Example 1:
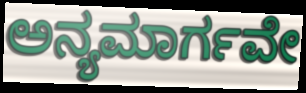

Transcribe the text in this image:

ಅನ್ಯಮಾರ್ಗವೇ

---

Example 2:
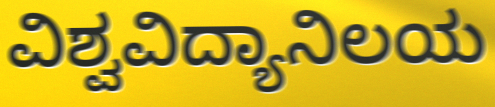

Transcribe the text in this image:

ವಿಶ್ವವಿದ್ಯಾನಿಲಯ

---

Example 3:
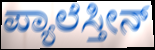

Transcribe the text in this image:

ಪ್ಯಾಲೆಸ್ತೀನ್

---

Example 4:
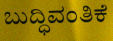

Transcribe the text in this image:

ಬುದ್ಧಿವಂತಿಕೆ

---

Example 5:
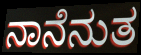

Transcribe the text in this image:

ನಾನೆನುತ